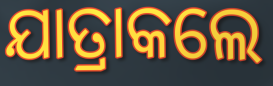
ଯାତ୍ରାକଲେ